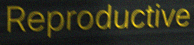
Reproductive